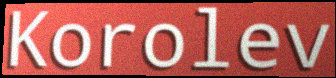
Korolev